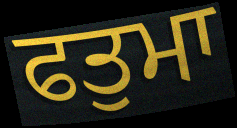
ਫਤੁਮਾ